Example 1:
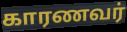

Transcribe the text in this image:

காரணவர்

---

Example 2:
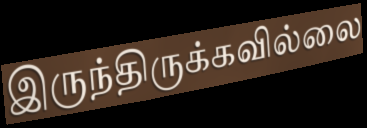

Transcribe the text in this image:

இருந்திருக்கவில்லை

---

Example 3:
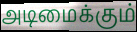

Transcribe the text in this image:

அடிமைக்கும்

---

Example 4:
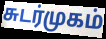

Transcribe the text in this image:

சுடர்முகம்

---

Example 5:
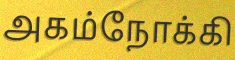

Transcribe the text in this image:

அகம்நோக்கி